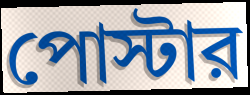
পোস্টার